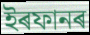
ইৰফানৰ